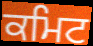
ਕਮਿਟ